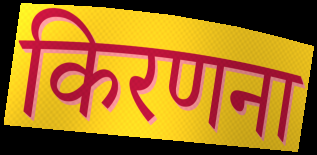
किरणना